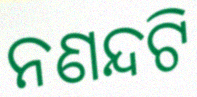
ନଣନ୍ଦଟି